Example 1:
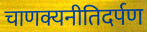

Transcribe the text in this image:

चाणक्यनीतिदर्पण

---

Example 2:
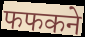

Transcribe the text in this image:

फफकने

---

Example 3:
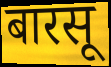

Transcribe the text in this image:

बारसू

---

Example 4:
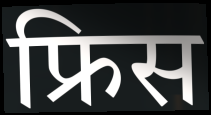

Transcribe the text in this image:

फ्रिस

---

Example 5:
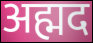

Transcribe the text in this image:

अह्मद